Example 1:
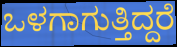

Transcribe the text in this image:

ಒಳಗಾಗುತ್ತಿದ್ದರೆ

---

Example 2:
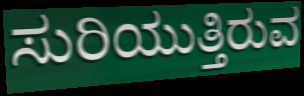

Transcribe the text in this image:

ಸುರಿಯುತ್ತಿರುವ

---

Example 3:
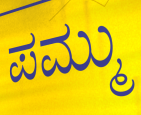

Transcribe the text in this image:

ಪಮ್ಮು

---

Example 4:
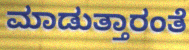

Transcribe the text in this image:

ಮಾಡುತ್ತಾರಂತೆ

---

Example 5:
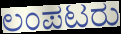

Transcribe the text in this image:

ಲಂಪಟರು